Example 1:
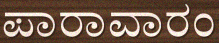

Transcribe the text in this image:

ಪಾರಾವಾರಂ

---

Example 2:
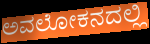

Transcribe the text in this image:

ಅವಲೋಕನದಲ್ಲಿ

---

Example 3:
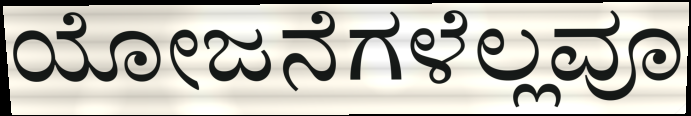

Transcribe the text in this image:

ಯೋಜನೆಗಳೆಲ್ಲವೂ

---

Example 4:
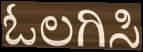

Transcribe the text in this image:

ಓಲಗಿಸಿ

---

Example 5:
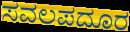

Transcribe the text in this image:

ಸವಲಪದೂರ